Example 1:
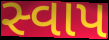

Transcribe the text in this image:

સ્વાપ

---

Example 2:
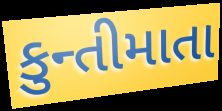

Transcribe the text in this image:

કુન્તીમાતા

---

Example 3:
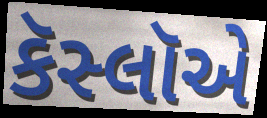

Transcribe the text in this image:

કૅસ્લૉએ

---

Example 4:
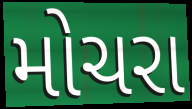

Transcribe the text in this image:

મોચરા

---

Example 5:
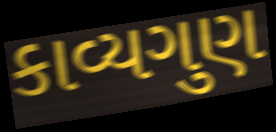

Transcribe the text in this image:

કાવ્યગુણ